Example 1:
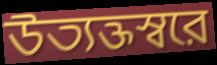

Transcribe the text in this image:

উত্যক্তস্বরে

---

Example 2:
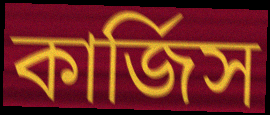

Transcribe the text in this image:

কার্জিস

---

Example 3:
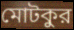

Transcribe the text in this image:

মোটকুর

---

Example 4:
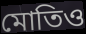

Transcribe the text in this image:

মোতিও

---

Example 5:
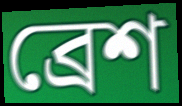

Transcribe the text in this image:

ব্রেশ